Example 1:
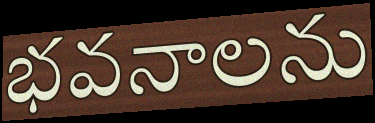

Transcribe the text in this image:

భవనాలను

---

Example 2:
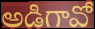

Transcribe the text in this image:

అడిగావో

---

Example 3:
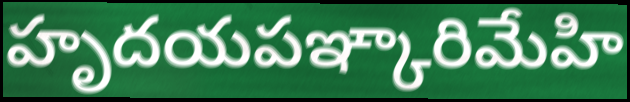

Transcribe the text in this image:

హృదయపఞ్కారిమేహి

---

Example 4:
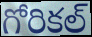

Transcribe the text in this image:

గోరికల్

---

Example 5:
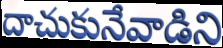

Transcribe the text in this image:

దాచుకునేవాడిని